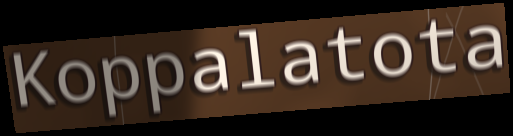
Koppalatota